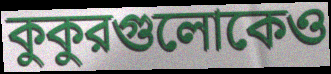
কুকুরগুলোকেও